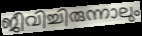
ജീവിച്ചിരുന്നാലും